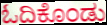
ಓದಿಕೊಂಡು